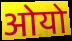
ओयो